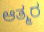
ಆತ್ಮರ